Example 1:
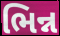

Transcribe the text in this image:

ભિન્ન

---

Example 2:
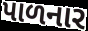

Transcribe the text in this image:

પાળનાર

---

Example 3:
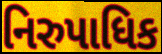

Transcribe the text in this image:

નિરુપાધિક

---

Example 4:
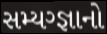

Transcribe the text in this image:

સમ્યગ્જ્ઞાનો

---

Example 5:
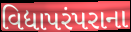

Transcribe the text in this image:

વિદ્યાપરંપરાના